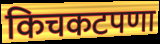
किचकटपणा